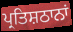
ਪ੍ਰਤਿਸ਼ਠਾਨਾਂ